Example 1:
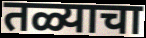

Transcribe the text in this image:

तळ्याचा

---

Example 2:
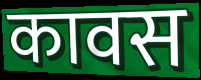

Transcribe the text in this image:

कावस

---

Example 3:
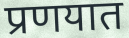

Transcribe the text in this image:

प्रणयात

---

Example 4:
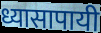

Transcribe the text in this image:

ध्यासापायी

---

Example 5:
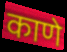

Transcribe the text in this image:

काणे